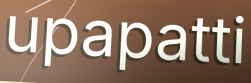
upapatti